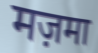
मज़मा